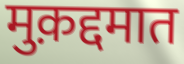
मुक़द्दमात